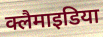
क्लैमाइडिया